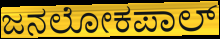
ಜನಲೋಕಪಾಲ್